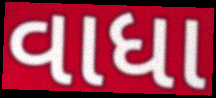
વાધા